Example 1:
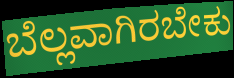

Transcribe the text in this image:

ಬೆಲ್ಲವಾಗಿರಬೇಕು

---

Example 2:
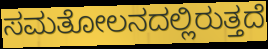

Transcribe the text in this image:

ಸಮತೋಲನದಲ್ಲಿರುತ್ತದೆ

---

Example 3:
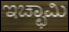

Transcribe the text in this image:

ಇಚ್ಛಾಮಿ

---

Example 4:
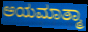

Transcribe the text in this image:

ಅಯಮಾತ್ಮಾ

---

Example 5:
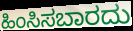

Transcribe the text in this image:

ಹಿಂಸಿಸಬಾರದು